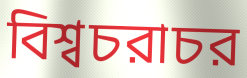
বিশ্বচরাচর